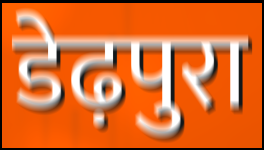
डेढ़पुरा